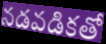
నడవడికతో